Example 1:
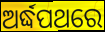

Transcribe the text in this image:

ଅର୍ଦ୍ଧପଥରେ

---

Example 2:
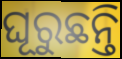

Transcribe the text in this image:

ଘୂରୁଛନ୍ତି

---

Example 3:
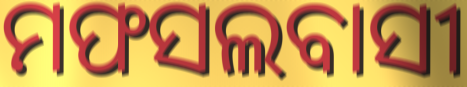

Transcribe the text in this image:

ମଫସଲବାସୀ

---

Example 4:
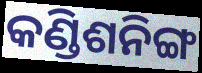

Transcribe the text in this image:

କଣ୍ଡିଶନିଙ୍ଗ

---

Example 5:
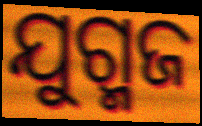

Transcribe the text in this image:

ଯୁଗ୍ମଜ